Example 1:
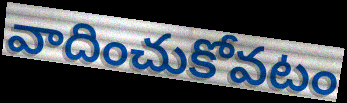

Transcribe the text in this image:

వాదించుకోవటం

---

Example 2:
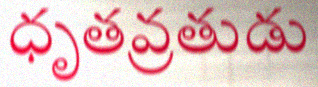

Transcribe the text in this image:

ధృతవ్రతుడు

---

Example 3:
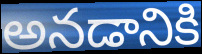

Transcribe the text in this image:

అనడానికి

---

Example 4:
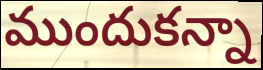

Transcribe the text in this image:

ముందుకన్నా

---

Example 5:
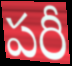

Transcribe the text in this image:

పరీ